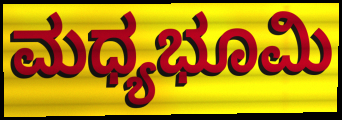
ಮಧ್ಯಭೂಮಿ